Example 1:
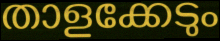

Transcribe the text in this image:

താളക്കേടും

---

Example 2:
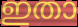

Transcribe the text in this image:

ഇതാ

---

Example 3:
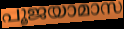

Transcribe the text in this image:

പൂജയാമാസ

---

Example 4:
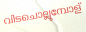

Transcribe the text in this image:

വിടചൊല്ലുമ്പോള്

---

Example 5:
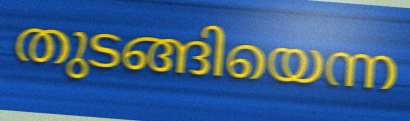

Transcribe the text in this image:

തുടങ്ങിയെന്ന